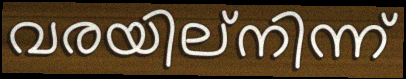
വരയില്നിന്ന്